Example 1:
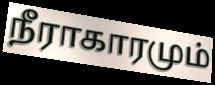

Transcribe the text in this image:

நீராகாரமும்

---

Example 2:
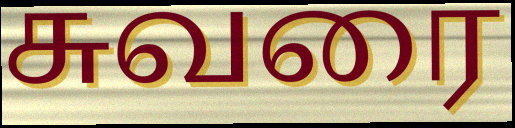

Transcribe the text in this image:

சுவரை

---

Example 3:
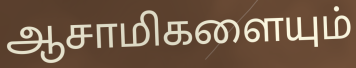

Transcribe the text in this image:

ஆசாமிகளையும்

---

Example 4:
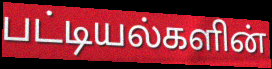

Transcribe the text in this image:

பட்டியல்களின்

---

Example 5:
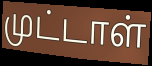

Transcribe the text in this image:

முட்டாள்